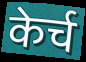
केर्च